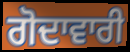
ਗੋਦਾਵਾਰੀ